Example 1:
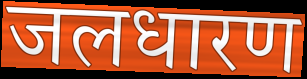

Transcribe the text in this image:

जलधारण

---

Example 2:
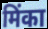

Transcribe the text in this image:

मिंका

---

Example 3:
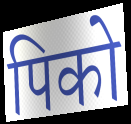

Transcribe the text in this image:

पिको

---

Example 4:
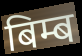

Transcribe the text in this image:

बिम्ब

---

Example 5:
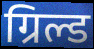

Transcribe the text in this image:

ग्रिल्ड